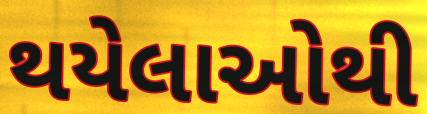
થયેલાઓથી